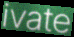
ivate